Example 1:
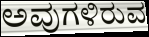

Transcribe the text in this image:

ಅವುಗಳಿರುವ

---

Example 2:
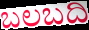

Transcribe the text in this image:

ಬಲಬದಿ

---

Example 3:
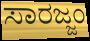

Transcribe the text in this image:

ಸಾರಜ್ಜಂ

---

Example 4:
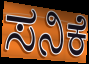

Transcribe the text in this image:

ಸನಿಕೆ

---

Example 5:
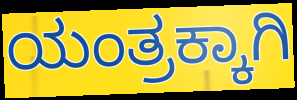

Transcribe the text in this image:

ಯಂತ್ರಕ್ಕಾಗಿ